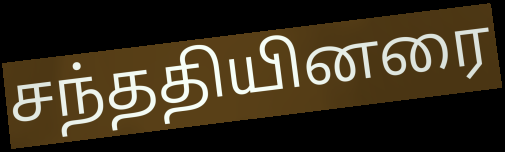
சந்ததியினரை